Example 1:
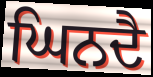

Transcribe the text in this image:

ਘਿਨਦੈ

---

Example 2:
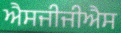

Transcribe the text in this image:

ਐਸਜੀਜੀਐਸ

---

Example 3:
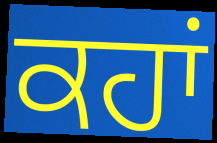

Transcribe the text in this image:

ਕਹਾਂ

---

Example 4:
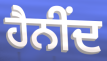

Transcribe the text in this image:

ਹੈਨੀਂਦ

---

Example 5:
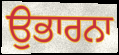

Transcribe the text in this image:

ਉਭਾਰਨਾ